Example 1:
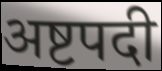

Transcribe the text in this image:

अष्टपदी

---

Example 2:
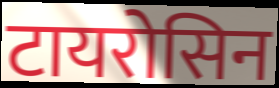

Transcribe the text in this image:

टायरोसिन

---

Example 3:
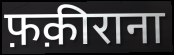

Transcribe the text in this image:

फ़क़ीराना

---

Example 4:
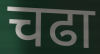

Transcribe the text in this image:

चढा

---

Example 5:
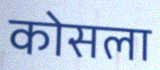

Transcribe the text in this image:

कोसला